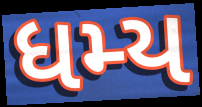
ધમ્ય